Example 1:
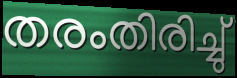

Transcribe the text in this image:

തരംതിരിച്ചു്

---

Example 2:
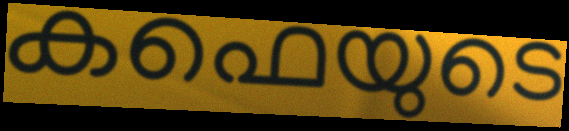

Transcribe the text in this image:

കഫെയുടെ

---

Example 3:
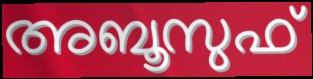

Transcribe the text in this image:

അബൂസുഫ്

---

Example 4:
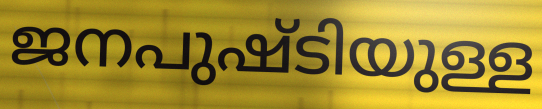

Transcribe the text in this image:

ജനപുഷ്ടിയുള്ള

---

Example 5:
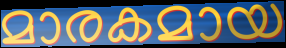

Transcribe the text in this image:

മാരകമായ